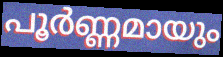
പൂർണ്ണമായും